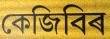
কেজিবিৰ